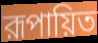
রূপায়িত